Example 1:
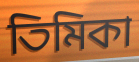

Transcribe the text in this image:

তিমিকা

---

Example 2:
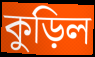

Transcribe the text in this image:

কুড়িল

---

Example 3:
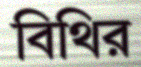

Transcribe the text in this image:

বিথির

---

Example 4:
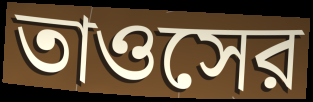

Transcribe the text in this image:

তাওসের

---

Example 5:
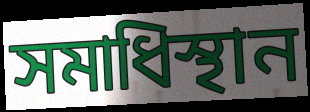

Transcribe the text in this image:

সমাধিস্থান